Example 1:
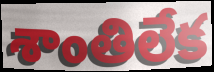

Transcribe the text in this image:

శాంతిలేక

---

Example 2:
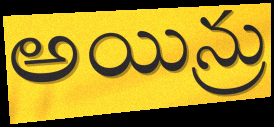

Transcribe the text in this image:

అయిన్రు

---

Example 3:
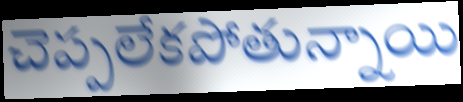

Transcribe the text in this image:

చెప్పలేకపోతున్నాయి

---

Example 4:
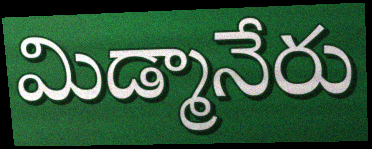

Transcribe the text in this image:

మిడ్మానేరు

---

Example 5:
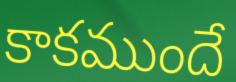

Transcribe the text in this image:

కాకముందే